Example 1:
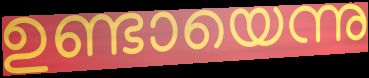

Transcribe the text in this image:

ഉണ്ടായെന്നു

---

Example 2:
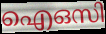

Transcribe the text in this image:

ഐഒസി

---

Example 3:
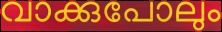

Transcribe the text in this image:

വാക്കുപോലും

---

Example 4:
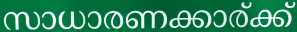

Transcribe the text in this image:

സാധാരണക്കാര്ക്ക്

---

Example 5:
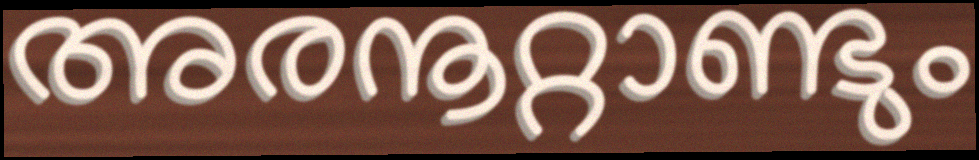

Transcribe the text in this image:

അരനൂറ്റാണ്ടും